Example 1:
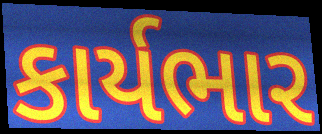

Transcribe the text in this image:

કાર્યભાર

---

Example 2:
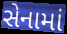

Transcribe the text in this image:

સેનામાં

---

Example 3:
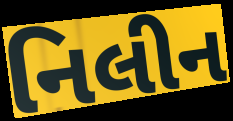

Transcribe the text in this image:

નિલીન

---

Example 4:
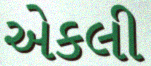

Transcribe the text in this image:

એકલી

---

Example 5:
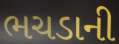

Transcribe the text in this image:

ભચડાની